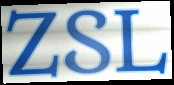
ZSL